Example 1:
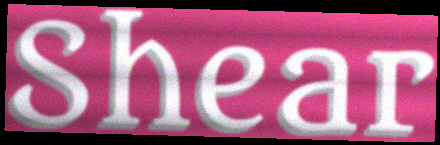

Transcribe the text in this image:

Shear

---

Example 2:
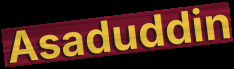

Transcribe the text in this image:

Asaduddin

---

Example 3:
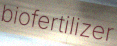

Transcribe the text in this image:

biofertilizer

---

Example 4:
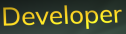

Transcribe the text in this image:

Developer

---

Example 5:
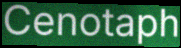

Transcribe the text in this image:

Cenotaph